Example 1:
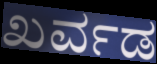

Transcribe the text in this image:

ಖರ್ವಡ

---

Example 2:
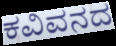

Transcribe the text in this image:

ಕವಿವನದ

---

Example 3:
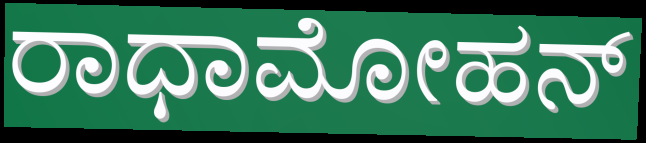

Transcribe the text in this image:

ರಾಧಾಮೋಹನ್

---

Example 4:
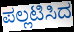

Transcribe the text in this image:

ಪಲ್ಲಟಿಸಿದ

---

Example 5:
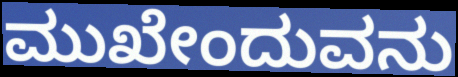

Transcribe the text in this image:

ಮುಖೇಂದುವನು